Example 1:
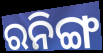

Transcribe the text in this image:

ରନିଙ୍ଗ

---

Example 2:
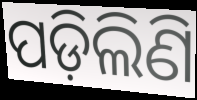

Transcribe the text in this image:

ପଡ଼ିଲିଣି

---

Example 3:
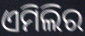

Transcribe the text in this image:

ଏମିଲିର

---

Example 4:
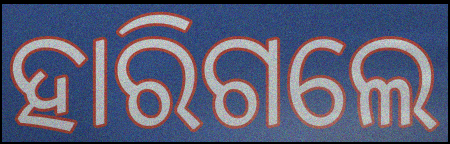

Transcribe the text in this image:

ହାରିଗଲେ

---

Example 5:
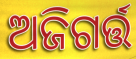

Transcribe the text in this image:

ଅଜିଗର୍ତ୍ତ